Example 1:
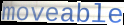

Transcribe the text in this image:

moveable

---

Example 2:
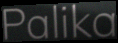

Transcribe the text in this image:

Palika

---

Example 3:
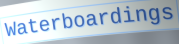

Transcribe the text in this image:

Waterboardings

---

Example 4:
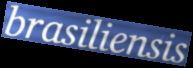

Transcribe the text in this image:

brasiliensis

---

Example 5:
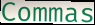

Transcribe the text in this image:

Commas